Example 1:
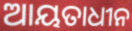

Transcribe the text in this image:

ଆୟତାଧୀନ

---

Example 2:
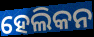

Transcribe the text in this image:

ହେଲିକନ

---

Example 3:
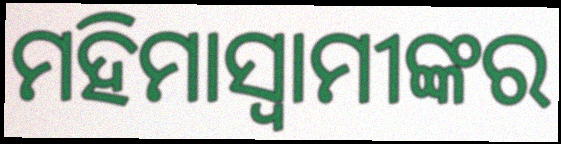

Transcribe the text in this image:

ମହିମାସ୍ୱାମୀଙ୍କର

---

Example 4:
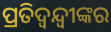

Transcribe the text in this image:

ପ୍ରତିଦ୍ୱନ୍ଦ୍ୱୀଙ୍କର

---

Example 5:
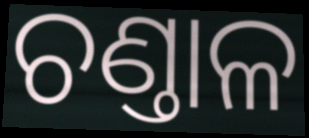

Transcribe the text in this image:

ଚଣ୍ତାଳ